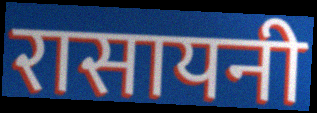
रासायनी